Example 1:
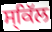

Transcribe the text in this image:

ਸ੍ਕਿੱਲ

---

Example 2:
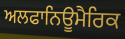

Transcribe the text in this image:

ਅਲਫਾਨਿਊਮੈਰਿਕ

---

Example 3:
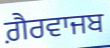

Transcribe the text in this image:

ਗ਼ੈਰਵਾਜਬ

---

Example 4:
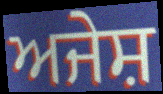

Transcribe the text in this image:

ਅਜੇਸ਼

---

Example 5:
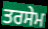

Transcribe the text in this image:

ਤਰਸੇਮ